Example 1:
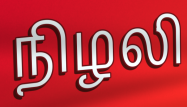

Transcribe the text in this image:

நிழலி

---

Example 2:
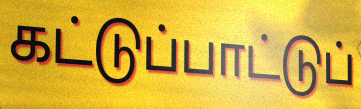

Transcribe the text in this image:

கட்டுப்பாட்டுப்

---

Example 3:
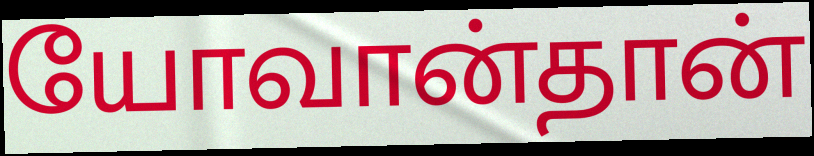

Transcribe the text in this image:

யோவான்தான்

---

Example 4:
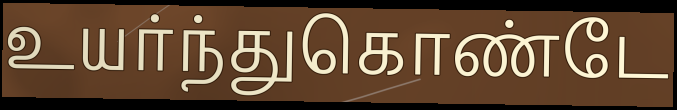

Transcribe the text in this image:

உயர்ந்துகொண்டே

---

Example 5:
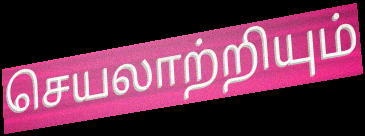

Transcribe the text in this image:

செயலாற்றியும்